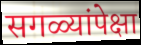
सगळ्यांपेक्षा